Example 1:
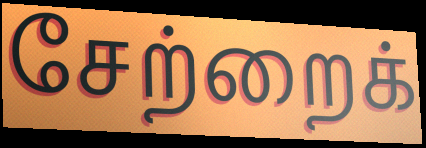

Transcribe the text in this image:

சேற்றைக்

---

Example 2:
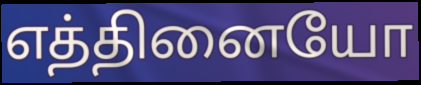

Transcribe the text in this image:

எத்தினையோ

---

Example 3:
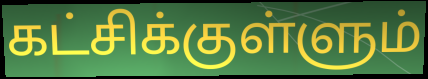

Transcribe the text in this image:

கட்சிக்குள்ளும்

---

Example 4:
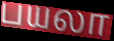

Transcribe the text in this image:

பயலா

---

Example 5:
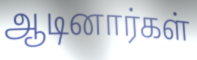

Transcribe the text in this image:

ஆடினார்கள்